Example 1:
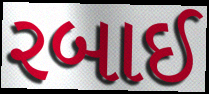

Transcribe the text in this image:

રબાઈ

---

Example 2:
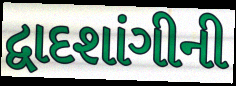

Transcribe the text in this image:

દ્વાદશાંગીની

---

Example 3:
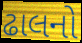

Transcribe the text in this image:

ઢાલનો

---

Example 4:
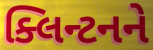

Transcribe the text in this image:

ક્લિન્ટનને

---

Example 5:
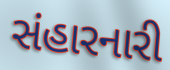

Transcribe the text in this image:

સંહારનારી